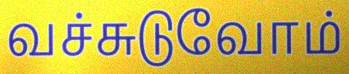
வச்சுடுவோம்